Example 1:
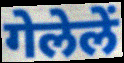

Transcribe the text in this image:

गेलेलें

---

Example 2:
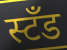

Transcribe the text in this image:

स्टँड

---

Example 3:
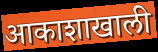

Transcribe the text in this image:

आकाशाखाली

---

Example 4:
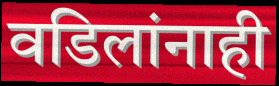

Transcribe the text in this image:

वडिलांनाही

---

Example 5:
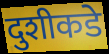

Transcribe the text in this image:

दुशीकडे